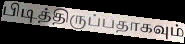
பிடித்திருப்பதாகவும்